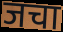
जचा